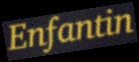
Enfantin